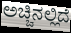
ಅಚ್ಚಿನಲ್ಲಿದೆ